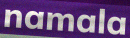
namala